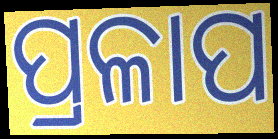
ପ୍ରଳାପ